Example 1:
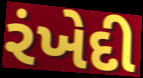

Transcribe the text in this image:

રંખેદી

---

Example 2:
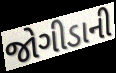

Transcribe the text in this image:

જોગીડાની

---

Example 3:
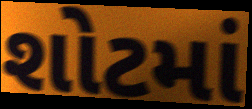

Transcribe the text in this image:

શોટમાં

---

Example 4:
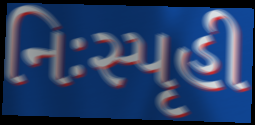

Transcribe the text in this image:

નિઃસ્પૃહી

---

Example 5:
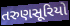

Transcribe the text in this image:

તરુણસૂરિયો